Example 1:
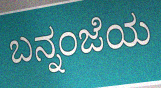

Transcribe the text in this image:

ಬನ್ನಂಜೆಯ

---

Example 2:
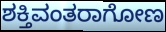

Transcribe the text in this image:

ಶಕ್ತಿವಂತರಾಗೋಣ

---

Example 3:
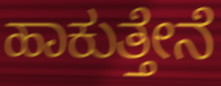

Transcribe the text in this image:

ಹಾಕುತ್ತೇನೆ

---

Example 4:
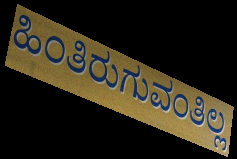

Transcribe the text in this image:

ಹಿಂತಿರುಗುವಂತಿಲ್ಲ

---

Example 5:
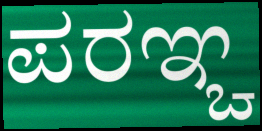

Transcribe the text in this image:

ಪರಞ್ಚ